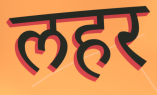
लहर